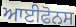
ਆਈਫੋਨਸ